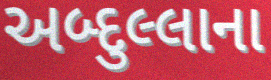
અબ્દુલ્લાના